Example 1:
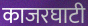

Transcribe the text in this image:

काजरघाटी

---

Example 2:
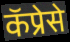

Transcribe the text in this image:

कॅप्रेसे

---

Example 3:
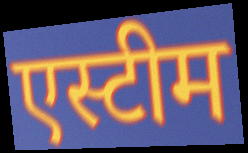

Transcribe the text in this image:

एस्टीम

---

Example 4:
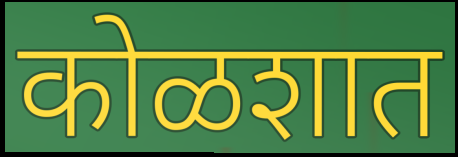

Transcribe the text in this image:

कोळशात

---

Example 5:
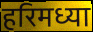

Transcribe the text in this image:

हरिमध्या